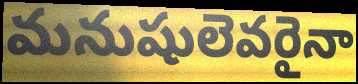
మనుషులెవరైనా